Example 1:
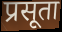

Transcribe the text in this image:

प्रसूता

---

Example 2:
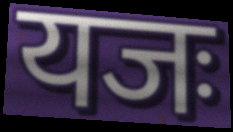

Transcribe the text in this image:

यजः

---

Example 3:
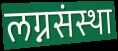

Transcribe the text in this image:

लग्नसंस्था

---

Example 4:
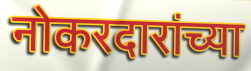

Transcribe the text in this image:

नोकरदारांच्या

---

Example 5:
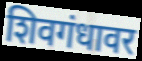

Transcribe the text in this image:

शिवगंधावर